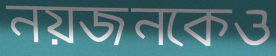
নয়জনকেও